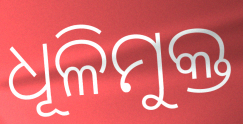
ଧୂଳିମୁକ୍ତ